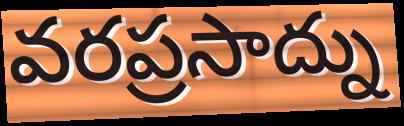
వరప్రసాద్ను